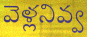
వెళ్లనివ్వ